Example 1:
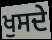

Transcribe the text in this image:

ਖੁਸਦੇ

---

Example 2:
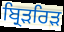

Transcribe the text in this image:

ਬ੍ਰਿੜਰਿੜ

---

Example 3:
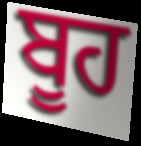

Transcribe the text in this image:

ਬੂਹ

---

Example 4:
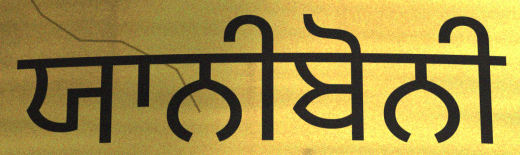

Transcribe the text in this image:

ਯਾਨੀਬੋਨੀ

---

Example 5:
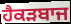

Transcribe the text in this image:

ਹੈਕੜਬਾਜ